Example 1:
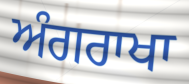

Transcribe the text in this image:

ਅੰਗਰਾਖਾ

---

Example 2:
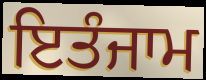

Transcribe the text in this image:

ਇਤੰਜਾਮ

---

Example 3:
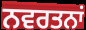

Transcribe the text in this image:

ਨਵਰਤਨਾਂ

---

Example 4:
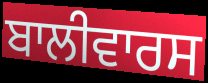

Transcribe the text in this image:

ਬਾਲੀਵਾਰਸ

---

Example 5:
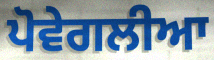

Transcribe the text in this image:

ਪੋਵੇਗਲੀਆ